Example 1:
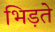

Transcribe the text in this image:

भिड़ते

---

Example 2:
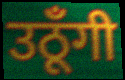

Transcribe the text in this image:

उठूँगी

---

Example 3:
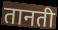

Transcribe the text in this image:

तानती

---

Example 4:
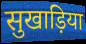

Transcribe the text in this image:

सुखाड़िया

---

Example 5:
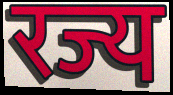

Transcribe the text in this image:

रज्य